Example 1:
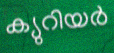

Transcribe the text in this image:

ക്യുറിയർ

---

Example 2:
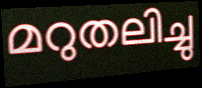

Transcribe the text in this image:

മറുതലിച്ചു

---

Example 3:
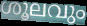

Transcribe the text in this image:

ശൂലവും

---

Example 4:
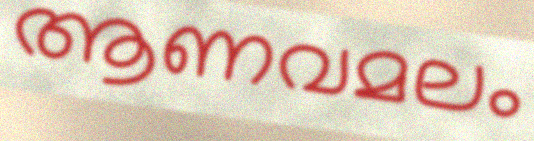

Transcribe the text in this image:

ആണവമലം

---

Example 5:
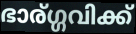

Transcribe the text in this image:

ഭാര്ഗ്ഗവിക്ക്